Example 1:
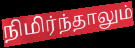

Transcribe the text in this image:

நிமிர்ந்தாலும்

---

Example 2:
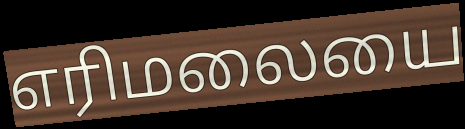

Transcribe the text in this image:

எரிமலையை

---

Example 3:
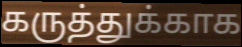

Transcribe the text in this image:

கருத்துக்காக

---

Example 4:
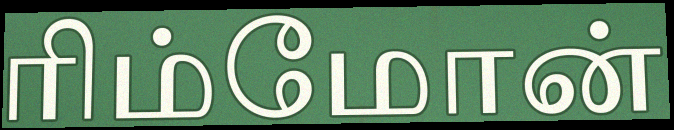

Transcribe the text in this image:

ரிம்மோன்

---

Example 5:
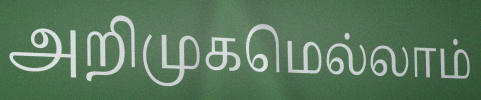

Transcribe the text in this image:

அறிமுகமெல்லாம்